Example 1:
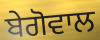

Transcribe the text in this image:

ਬੇਗੋਵਾਲ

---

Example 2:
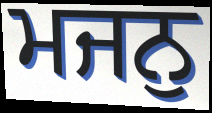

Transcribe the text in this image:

ਮਜਨੁ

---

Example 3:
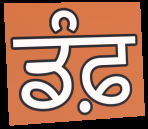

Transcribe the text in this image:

ਡੰਫ਼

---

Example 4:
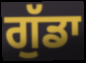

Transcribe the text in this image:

ਗੁੱਡਾ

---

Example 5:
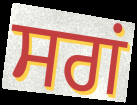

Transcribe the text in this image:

ਸਗਂ